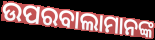
ଉପରବାଲାମାନଙ୍କ